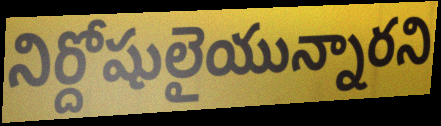
నిర్దోషులైయున్నారని